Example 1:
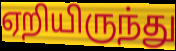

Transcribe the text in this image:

ஏறியிருந்து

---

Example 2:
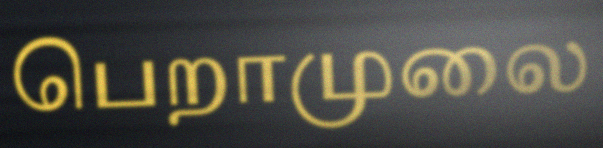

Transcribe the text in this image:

பெறாமுலை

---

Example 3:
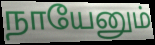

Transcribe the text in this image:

நாயேனும்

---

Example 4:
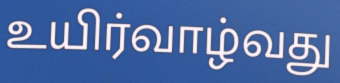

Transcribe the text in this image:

உயிர்வாழ்வது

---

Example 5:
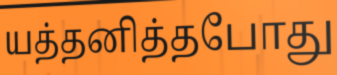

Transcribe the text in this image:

யத்தனித்தபோது